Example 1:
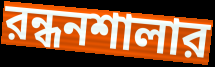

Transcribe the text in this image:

রন্ধনশালার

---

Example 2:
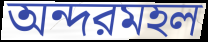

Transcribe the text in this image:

অন্দরমহল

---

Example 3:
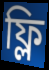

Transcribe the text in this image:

ফ্লি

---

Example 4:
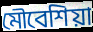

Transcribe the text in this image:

মৌবেশিয়া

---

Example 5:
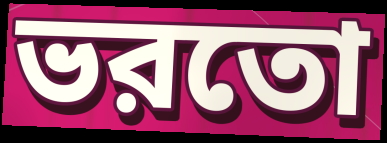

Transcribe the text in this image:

ভরতো